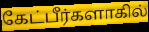
கேட்பீர்களாகில்